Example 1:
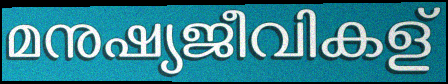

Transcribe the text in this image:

മനുഷ്യജീവികള്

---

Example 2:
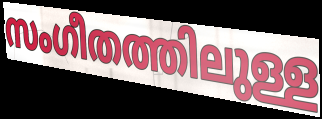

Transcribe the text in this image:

സംഗീതത്തിലുള്ള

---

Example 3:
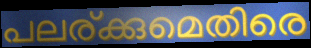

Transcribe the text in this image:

പലര്ക്കുമെതിരെ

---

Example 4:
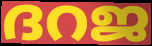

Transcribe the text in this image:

ദറജ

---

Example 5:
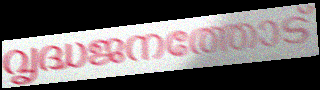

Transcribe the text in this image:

വൃദ്ധജനത്തോട്